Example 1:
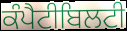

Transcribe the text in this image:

ਕੰਪੈਟੀਬਿਲਟੀ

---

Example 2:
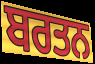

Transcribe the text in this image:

ਬਰਤਨ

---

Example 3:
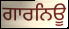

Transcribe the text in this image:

ਗਾਰਨਿਊ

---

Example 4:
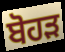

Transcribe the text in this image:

ਬੋਹੜ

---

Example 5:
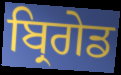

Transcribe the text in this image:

ਬ੍ਰਿਗੇਡ